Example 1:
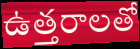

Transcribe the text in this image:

ఉత్తరాలతో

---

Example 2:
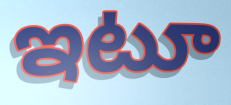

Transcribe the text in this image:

ఇటూ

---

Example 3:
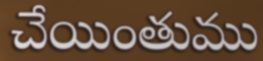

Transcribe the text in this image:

చేయింతుము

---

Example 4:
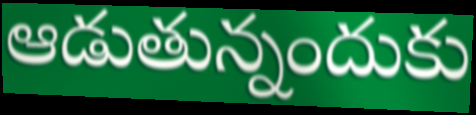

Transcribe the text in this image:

ఆడుతున్నందుకు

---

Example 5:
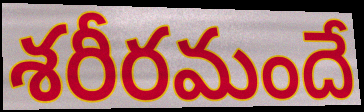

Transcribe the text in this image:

శరీరమందే